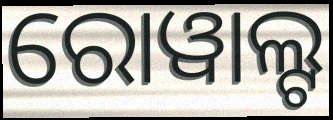
ରୋୱାଲ୍ଟ